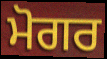
ਮੋਗਰ